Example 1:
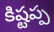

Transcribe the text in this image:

కిష్టప్ప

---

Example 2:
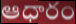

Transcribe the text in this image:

ఆధారం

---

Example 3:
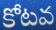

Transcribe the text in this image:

కోటవ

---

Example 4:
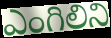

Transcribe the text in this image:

ఎంగిలిని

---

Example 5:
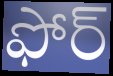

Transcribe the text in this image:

ఫోర్